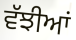
ਵੱਝੀਆਂ